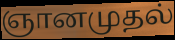
ஞானமுதல்